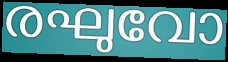
രഘുവോ